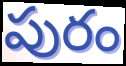
పురం